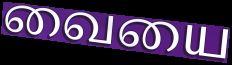
வையை